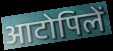
आटोपिलें